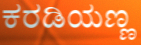
ಕರಡಿಯಣ್ಣ